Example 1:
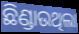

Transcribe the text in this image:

ଛିଣ୍ଡାଉଥିଲା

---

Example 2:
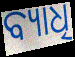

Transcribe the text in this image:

ବ୍ୟାଧି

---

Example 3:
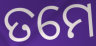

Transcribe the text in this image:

ତମେ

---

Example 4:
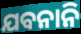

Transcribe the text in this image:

ଯବନାନି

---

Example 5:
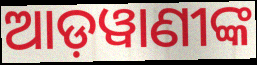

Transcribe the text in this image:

ଆଡ଼ୱାଣୀଙ୍କ